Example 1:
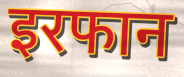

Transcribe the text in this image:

इरफान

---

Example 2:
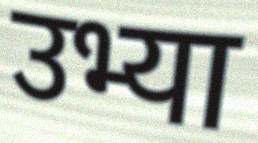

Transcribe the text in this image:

उभ्या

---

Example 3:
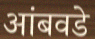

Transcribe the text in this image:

आंबवडे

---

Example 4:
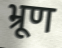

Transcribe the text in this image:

भ्रूण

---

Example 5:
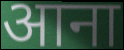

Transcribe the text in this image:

आना